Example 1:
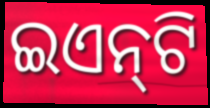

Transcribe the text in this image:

ଇଏନ୍‌ଟି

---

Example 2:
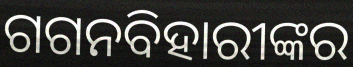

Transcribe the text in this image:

ଗଗନବିହାରୀଙ୍କର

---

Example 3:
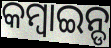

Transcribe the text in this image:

କମ୍ବାଇନ୍ଡ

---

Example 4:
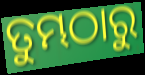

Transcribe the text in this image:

ତୁମ୍ଭଠାରୁ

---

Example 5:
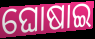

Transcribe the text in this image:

ଘୋଷାଇ